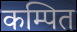
कम्पित